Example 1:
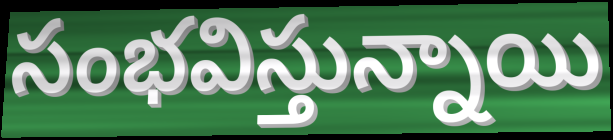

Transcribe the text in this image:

సంభవిస్తున్నాయి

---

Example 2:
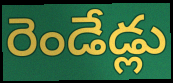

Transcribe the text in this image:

రెండేడ్లు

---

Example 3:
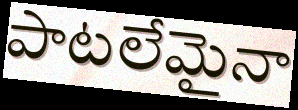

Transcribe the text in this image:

పాటలేమైనా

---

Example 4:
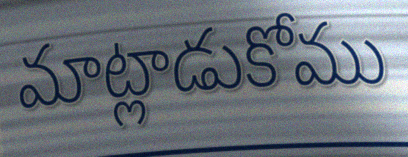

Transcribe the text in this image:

మాట్లాడుకోము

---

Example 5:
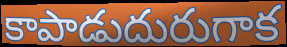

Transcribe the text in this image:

కాపాడుదురుగాక